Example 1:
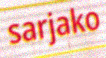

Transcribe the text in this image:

sarjako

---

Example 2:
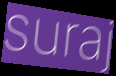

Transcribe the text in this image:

suraj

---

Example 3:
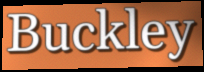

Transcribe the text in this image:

Buckley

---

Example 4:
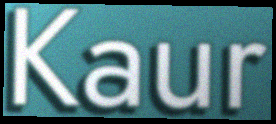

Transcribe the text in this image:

Kaur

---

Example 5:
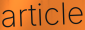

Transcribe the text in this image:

article